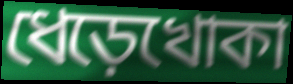
ধেড়েখোকা